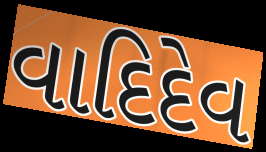
વાદિદેવ